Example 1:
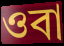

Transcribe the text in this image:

ওবা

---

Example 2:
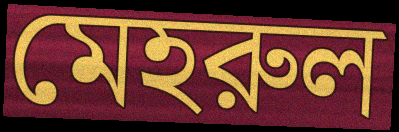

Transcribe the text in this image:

মেহরুল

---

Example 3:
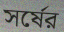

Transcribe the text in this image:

সর্ষের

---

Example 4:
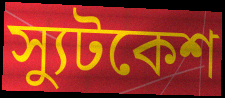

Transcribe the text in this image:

স্যুটকেশ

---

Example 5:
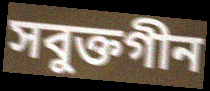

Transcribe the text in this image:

সবুক্তগীন